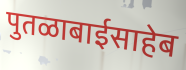
पुतळाबाईसाहेब